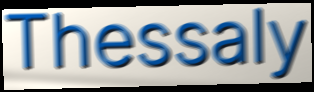
Thessaly